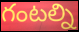
గంటల్ని